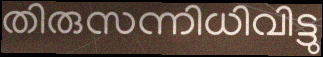
തിരുസന്നിധിവിട്ടു